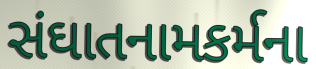
સંઘાતનામકર્મના